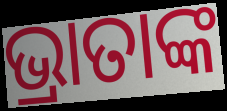
ଭ୍ରାତାଙ୍କ